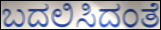
ಬದಲಿಸಿದಂತೆ